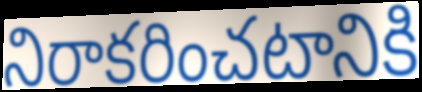
నిరాకరించటానికి